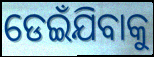
ଡେଇଁଯିବାକୁ